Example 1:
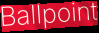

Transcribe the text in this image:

Ballpoint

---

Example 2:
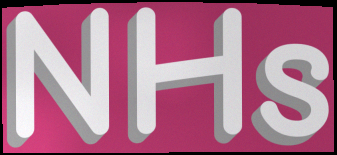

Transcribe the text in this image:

NHs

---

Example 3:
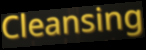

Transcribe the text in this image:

Cleansing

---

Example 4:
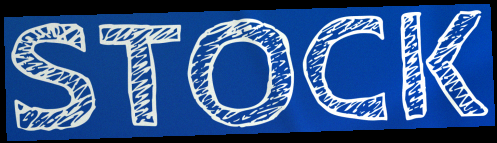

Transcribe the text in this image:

STOCK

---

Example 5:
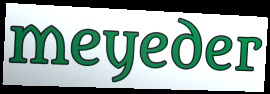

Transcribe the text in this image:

meyeder